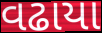
વઢાયા